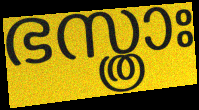
ഭസ്ത്രാഃ